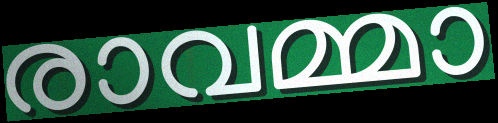
രാവമ്മാ